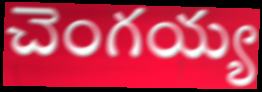
చెంగయ్య